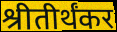
श्रीतीर्थंकर